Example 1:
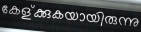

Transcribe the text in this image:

കേള്ക്കുകയായിരുന്നു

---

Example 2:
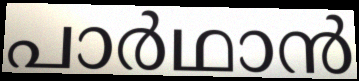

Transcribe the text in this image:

പാർഥാൻ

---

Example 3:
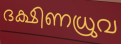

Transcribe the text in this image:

ദക്ഷിണധ്രുവ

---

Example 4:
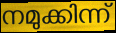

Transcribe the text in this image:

നമുക്കിന്ന്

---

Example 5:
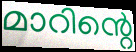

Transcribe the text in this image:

മാറിന്റെ